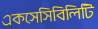
একসেসিবিলিটি